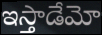
ఇస్తాడేమో